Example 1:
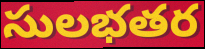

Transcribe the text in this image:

సులభతర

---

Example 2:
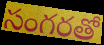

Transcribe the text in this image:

సంగరతో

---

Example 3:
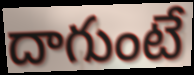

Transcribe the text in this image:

దాగుంటే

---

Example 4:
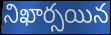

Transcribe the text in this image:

నిఖార్సయిన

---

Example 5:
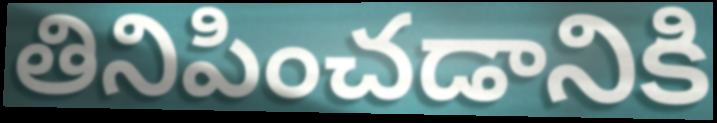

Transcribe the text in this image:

తినిపించడానికి